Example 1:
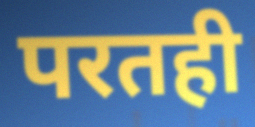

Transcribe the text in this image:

परतही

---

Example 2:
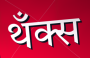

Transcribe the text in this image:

थँक्स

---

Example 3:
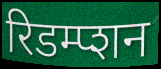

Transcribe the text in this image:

रिडम्प्शन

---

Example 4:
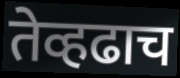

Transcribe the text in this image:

तेव्हढाच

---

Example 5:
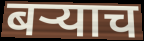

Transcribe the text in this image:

बर्‍याच